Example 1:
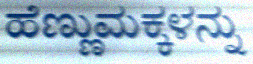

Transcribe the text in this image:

ಹೆಣ್ಣುಮಕ್ಕಳನ್ನು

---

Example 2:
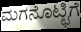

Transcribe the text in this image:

ಮಗನೊಟ್ಟಿಗೆ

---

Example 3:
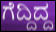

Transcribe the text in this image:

ಗೆದ್ದಿದ್ದ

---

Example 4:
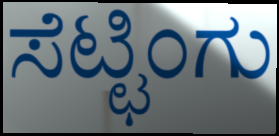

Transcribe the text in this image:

ಸೆಟ್ಟಿಂಗು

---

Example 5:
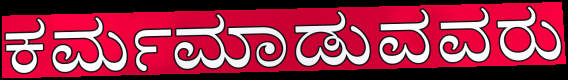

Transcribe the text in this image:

ಕರ್ಮಮಾಡುವವರು